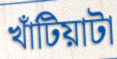
খাঁটিয়াটা